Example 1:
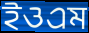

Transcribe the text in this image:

ইওএম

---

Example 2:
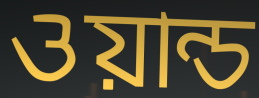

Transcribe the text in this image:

ওয়ান্ড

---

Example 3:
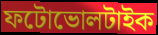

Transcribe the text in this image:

ফটোভোলটাইক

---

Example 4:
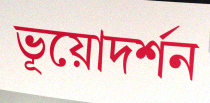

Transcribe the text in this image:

ভূয়োদর্শন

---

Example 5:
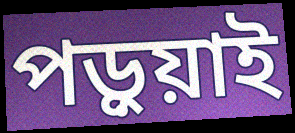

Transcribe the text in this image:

পড়ুয়াই